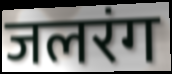
जलरंग